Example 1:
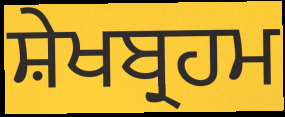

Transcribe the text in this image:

ਸ਼ੇਖਬ੍ਰਹਮ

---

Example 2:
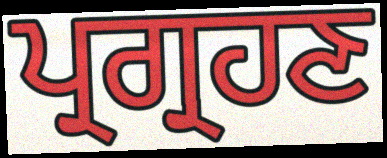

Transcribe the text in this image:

ਪ੍ਰਗ੍ਰਹਣ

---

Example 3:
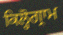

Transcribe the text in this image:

ਕਿਲ੍ਹੋਗ੍ਰਾਮ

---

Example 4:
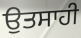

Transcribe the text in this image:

ਉਤਸਾਹੀ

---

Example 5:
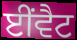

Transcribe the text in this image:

ਈਂਵੈਟ